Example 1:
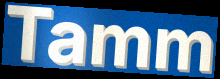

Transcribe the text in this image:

Tamm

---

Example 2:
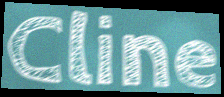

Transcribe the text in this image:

Cline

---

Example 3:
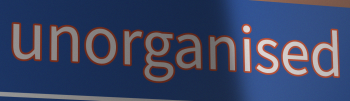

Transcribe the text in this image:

unorganised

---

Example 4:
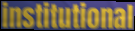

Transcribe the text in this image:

institutional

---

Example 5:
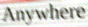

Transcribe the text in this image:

Anywhere